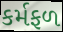
કર્મફળ